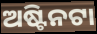
ଅଷ୍ଟିନଟା